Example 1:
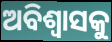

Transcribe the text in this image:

ଅବିଶ୍ୱାସକୁ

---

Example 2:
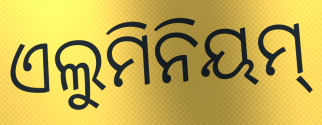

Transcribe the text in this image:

ଏଲୁମିନିୟମ୍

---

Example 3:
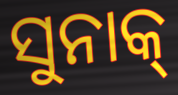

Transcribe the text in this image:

ସୁନାକ୍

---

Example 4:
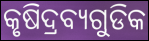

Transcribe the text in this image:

କୃଷିଦ୍ରବ୍ୟଗୁଡିକ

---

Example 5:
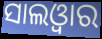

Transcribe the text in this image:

ସାଲଓ୍ଵାର